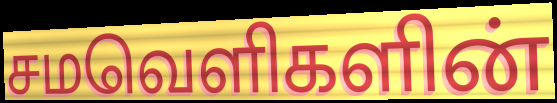
சமவெளிகளின்